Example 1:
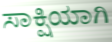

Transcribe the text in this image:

ಸಾಕ್ಷಿಯಾಗಿ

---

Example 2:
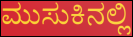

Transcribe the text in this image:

ಮುಸುಕಿನಲ್ಲಿ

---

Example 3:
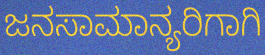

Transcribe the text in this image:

ಜನಸಾಮಾನ್ಯರಿಗಾಗಿ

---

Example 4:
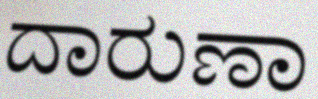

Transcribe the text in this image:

ದಾರುಣಾ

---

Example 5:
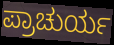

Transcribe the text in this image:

ಪ್ರಾಚುರ್ಯ